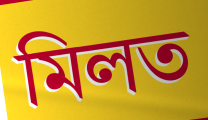
মিলত